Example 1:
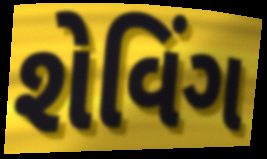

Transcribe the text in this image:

શેવિંગ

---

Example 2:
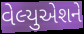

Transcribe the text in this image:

વેલ્યુએશને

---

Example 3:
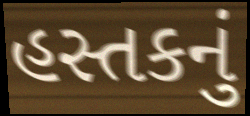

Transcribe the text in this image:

હસ્તકનું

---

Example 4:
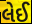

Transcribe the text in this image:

લેઈ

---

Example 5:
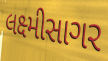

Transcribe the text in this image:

લક્ષ્મીસાગર